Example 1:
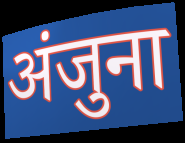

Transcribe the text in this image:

अंजुना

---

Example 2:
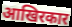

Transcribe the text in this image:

आखिरकार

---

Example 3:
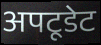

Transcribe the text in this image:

अपटूडेट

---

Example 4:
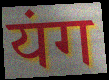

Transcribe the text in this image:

यंग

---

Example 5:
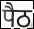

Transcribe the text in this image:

पैठ